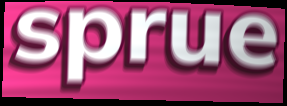
sprue